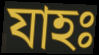
যাহঃ